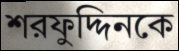
শরফুদ্দিনকে